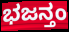
ಭಜನ್ತಂ